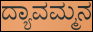
ದ್ಯಾವಮ್ಮನ